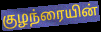
குழந்ரையின்